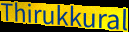
Thirukkural